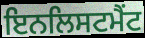
ਇਨਲਿਸਟਮੈਂਟ